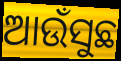
ଆଉଁସୁଛ